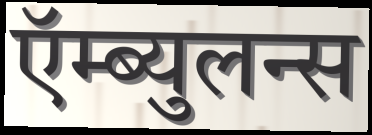
ऍम्ब्युलन्स